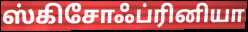
ஸ்கிசோஃப்ரினியா